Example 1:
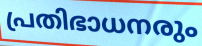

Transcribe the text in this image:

പ്രതിഭാധനരും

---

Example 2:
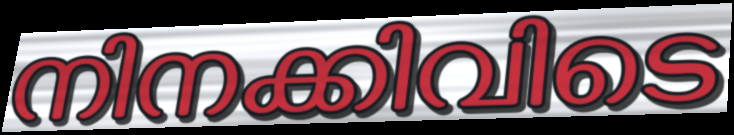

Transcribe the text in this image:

നിനക്കിവിടെ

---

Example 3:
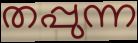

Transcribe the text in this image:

തപ്പുന്ന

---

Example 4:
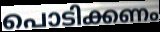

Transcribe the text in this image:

പൊടിക്കണം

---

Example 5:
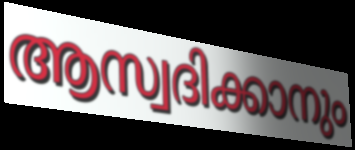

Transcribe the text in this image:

ആസ്വദിക്കാനും